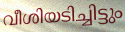
വീശിയടിച്ചിട്ടും